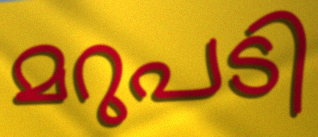
മറുപടി